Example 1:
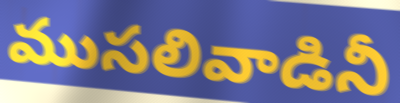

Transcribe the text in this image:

ముసలివాడినీ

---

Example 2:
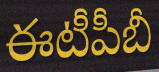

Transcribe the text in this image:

ఈటీపీబీ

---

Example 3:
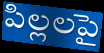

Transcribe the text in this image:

పిల్లలపై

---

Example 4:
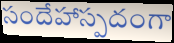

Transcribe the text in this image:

సందేహాస్పదంగా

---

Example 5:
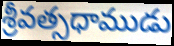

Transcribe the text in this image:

శ్రీవత్సధాముడు